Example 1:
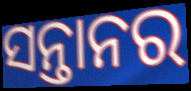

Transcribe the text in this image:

ସନ୍ତାନର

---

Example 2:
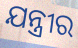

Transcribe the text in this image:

ଯନ୍ତ୍ରୀର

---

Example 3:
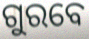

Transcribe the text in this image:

ଗୁରବେ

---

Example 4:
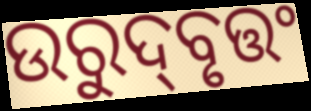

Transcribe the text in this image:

ଉରୁଦ୍‌ବୃତ୍ତଂ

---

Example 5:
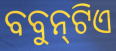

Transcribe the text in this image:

ବବୁନ୍‍ଟିଏ